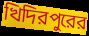
খিদিরপুরের